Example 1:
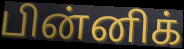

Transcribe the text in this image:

பின்னிக்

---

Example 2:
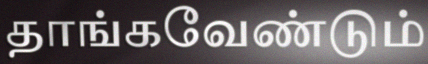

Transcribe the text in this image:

தாங்கவேண்டும்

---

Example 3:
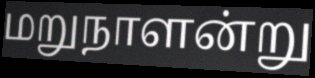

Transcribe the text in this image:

மறுநாளன்று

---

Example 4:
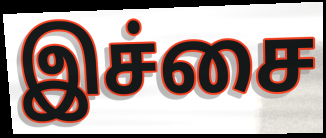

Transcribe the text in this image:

இச்சை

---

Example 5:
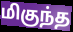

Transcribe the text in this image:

மிகுந்த